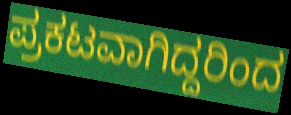
ಪ್ರಕಟವಾಗಿದ್ದರಿಂದ